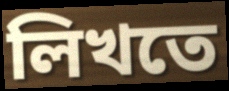
লিখতে